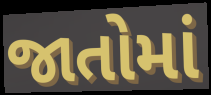
જાતોમાં